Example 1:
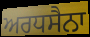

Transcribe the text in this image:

ਅਰਧਸੈਨਾ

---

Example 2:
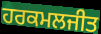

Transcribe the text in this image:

ਹਰਕਮਲਜੀਤ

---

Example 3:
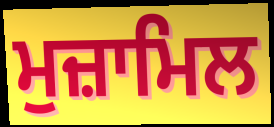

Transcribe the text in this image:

ਮੁਜ਼ਾਮਿਲ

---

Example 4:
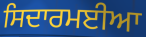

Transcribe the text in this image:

ਸਿਦਾਰਮਈਆ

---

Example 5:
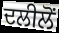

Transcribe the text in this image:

ਦਲੀਲੋਂ